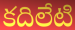
కదిలేటి